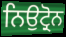
ਨਿਉਟ੍ਰੋਨ